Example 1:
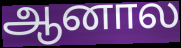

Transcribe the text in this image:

ஆனால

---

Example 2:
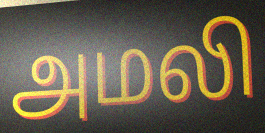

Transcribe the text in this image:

அமலி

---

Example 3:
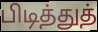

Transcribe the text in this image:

பிடித்துத்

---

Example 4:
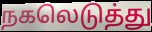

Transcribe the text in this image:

நகலெடுத்து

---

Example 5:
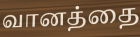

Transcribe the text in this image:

வானத்தை